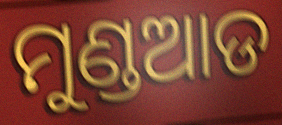
ମୁଣ୍ଡଆଡ